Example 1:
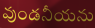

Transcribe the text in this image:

వుండనీయను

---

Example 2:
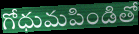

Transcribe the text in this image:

గోధుమపిండితో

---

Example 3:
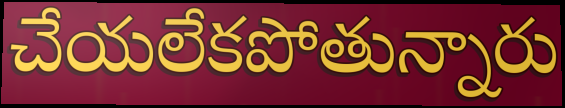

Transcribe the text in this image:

చేయలేకపోతున్నారు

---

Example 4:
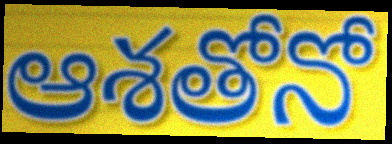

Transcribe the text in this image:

ఆశతోనో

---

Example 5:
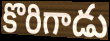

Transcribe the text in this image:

కొరిగాడు